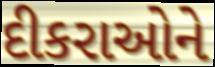
દીકરાઓને